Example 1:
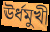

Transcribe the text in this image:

ঊর্ধমুখী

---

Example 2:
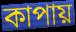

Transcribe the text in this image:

কাপায়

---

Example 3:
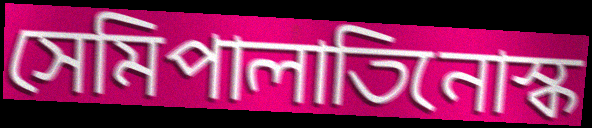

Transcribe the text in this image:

সেমিপালাতিনোস্ক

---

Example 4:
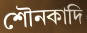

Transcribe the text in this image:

শৌনকাদি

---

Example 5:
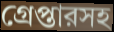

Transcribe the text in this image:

গ্রেপ্তারসহ